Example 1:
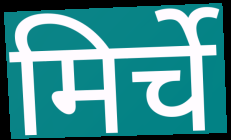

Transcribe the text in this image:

मिर्चे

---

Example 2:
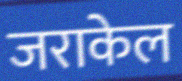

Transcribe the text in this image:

जराकेल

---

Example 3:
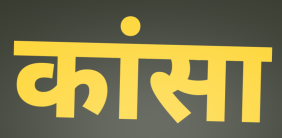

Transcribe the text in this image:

कांसा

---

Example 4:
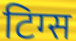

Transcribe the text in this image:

टिग्स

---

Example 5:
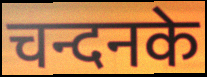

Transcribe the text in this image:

चन्दनके